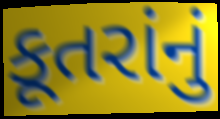
કૂતરાંનું